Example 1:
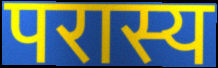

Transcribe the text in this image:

परास्य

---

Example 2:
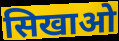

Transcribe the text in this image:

सिखाओ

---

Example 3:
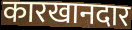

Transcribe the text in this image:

कारखानदार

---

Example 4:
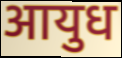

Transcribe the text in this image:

आयुध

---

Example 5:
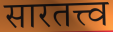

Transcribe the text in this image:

सारतत्त्व